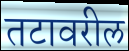
तटावरील